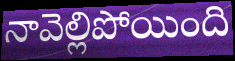
నావెల్లిపోయింది